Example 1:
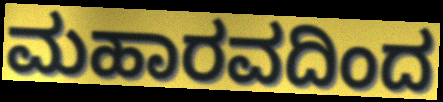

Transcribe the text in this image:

ಮಹಾರವದಿಂದ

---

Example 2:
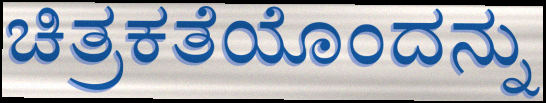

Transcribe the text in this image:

ಚಿತ್ರಕತೆಯೊಂದನ್ನು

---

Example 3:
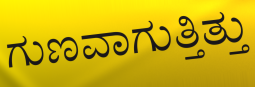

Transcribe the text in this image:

ಗುಣವಾಗುತ್ತಿತ್ತು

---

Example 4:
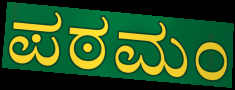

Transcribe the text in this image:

ಪಠಮಂ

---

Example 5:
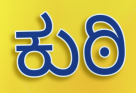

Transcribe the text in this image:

ಕುಠಿ